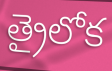
త్రైలోక